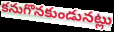
కనుగొనకుండునట్లు